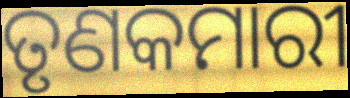
ତୃଣକମାରୀ